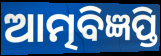
ଆତ୍ମବିଜ୍ଞପ୍ତି